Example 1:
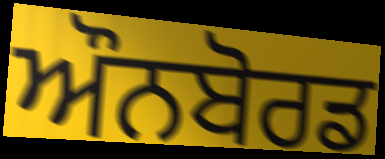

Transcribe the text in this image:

ਔਨਬੋਰਡ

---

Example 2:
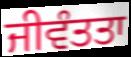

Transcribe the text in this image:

ਜੀਵੰਤਤਾ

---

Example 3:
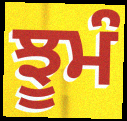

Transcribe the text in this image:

ਝੂਮੰ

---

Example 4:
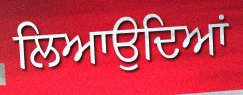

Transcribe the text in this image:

ਲਿਆਉਦਿਆਂ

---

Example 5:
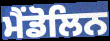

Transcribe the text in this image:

ਮੈਂਡੋਲਿਨ